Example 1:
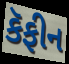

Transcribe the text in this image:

કૅફીન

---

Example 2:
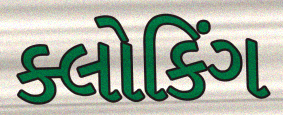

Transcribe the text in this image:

ક્લોકિંગ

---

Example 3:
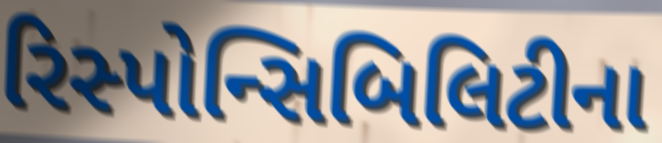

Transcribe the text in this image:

રિસ્પોન્સિબિલિટીના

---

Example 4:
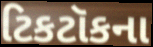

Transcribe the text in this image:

ટિકટૉકના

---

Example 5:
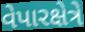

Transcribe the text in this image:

વેપારક્ષેત્રે